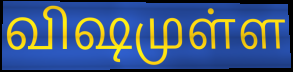
விஷமுள்ள